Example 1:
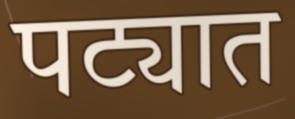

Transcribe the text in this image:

पट्यात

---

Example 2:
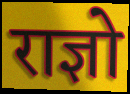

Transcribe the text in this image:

राज्ञो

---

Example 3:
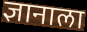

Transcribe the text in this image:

ज्ञानाला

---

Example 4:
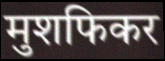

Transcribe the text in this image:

मुशफिकर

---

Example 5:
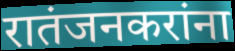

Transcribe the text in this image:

रातंजनकरांना